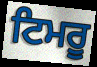
ਟਿਮਰੂ